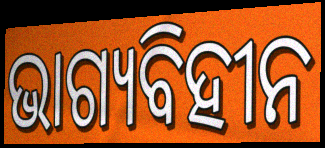
ଭାଗ୍ୟବିହୀନ